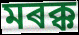
মৰক্ক